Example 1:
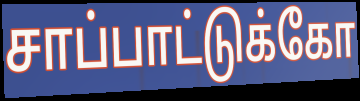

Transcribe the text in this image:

சாப்பாட்டுக்கோ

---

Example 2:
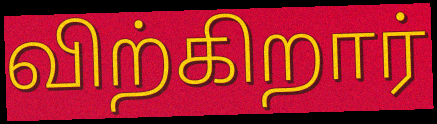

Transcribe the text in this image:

விற்கிறார்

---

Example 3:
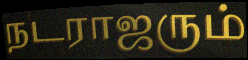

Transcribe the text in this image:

நடராஜரும்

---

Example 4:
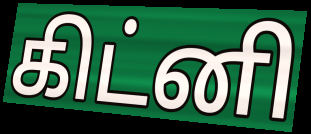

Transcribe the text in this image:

கிட்னி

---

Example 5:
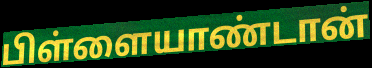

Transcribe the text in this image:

பிள்ளையாண்டான்